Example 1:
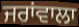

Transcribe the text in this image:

ਜਰਾਂਵਾਲਾ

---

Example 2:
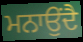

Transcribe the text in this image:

ਮਨਾਉਂਦੈ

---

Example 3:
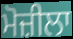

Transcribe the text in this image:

ਮੋਜ਼ੀਲਾ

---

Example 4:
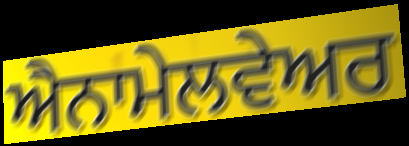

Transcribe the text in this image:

ਐਨਾਮੇਲਵੇਅਰ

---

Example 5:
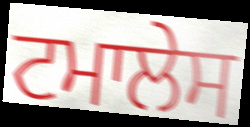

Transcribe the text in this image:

ਟਮਾਲੇਸ